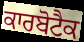
ਕਾਰਬੋਟੈਕ